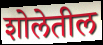
शोलेतील